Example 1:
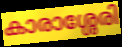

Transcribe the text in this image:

കാരാശ്ശേരി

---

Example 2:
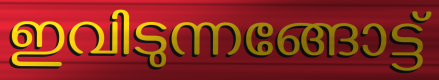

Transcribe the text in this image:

ഇവിടുന്നങ്ങോട്ട്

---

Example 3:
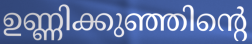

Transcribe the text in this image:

ഉണ്ണിക്കുഞ്ഞിന്റെ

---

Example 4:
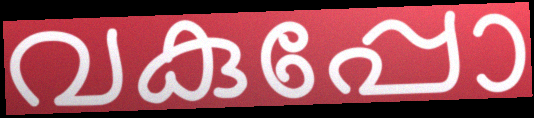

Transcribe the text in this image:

വകുപ്പോ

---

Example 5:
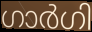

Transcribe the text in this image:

ഗാർഗി